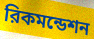
রিকমন্ডেশন